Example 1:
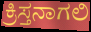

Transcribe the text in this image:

ಕ್ರಿಸ್ತನಾಗಲಿ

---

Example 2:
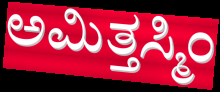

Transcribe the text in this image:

ಅಮಿತ್ತಸ್ಮಿಂ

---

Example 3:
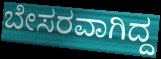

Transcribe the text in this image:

ಬೇಸರವಾಗಿದ್ದ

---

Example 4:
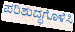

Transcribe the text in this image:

ಪರಿಶುದ್ಧಗೊಳಿಸಿ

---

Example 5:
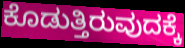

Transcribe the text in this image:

ಕೊಡುತ್ತಿರುವುದಕ್ಕೆ